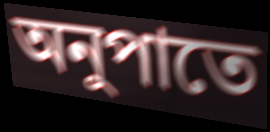
অনুপাতে